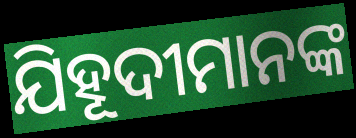
ଯିହୂଦୀମାନଙ୍କ